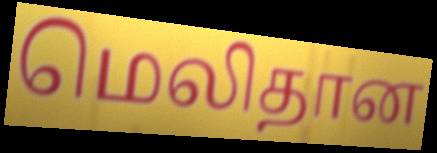
மெலிதான